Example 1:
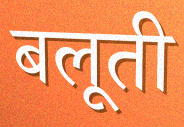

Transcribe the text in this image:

बलूती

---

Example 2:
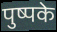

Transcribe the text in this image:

पुष्पके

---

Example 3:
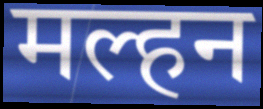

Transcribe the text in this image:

मल्हन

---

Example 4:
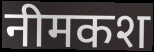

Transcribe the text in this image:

नीमकश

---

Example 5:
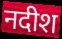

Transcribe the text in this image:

नदीश